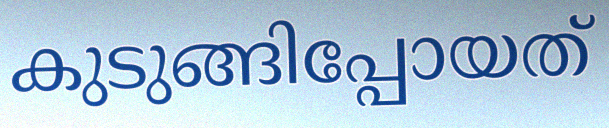
കുടുങ്ങിപ്പോയത്